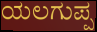
ಯಲಗುಪ್ಪ